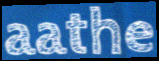
aathe